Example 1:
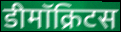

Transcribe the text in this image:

डीमॉक्रिटस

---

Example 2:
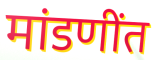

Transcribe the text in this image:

मांडणींत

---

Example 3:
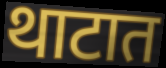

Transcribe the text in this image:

थाटात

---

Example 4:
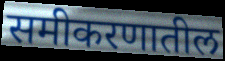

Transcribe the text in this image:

समीकरणातील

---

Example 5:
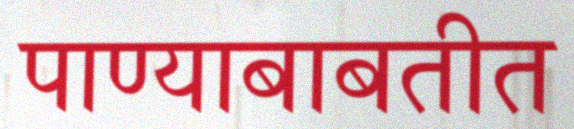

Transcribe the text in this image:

पाण्याबाबतीत